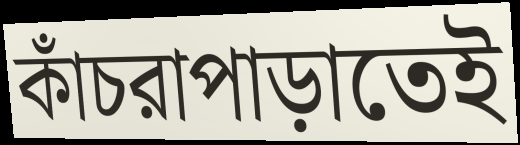
কাঁচরাপাড়াতেই